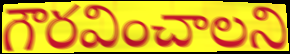
గౌరవించాలని